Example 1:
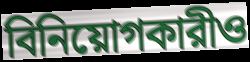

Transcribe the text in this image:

বিনিয়োগকারীও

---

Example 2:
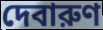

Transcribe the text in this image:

দেবারুণ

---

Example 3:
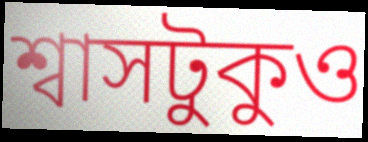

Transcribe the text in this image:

শ্বাসটুকুও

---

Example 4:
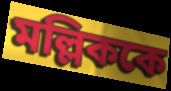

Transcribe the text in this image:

মল্লিককে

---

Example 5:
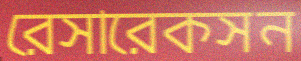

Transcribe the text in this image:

রেসারেকসন